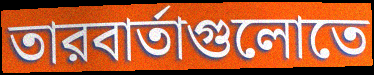
তারবার্তাগুলোতে